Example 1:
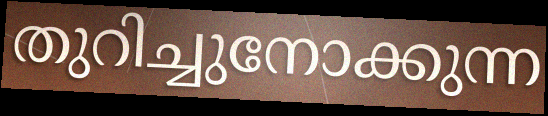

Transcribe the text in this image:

തുറിച്ചുനോക്കുന്ന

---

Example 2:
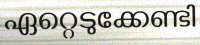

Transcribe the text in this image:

ഏറ്റെടുക്കേണ്ടി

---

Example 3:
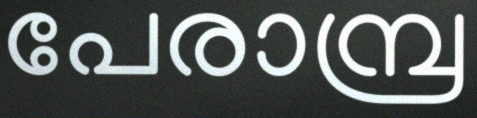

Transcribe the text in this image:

പേരാമ്പ്ര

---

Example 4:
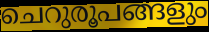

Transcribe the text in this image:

ചെറുരൂപങ്ങളും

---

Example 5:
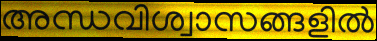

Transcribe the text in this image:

അന്ധവിശ്വാസങ്ങളിൽ